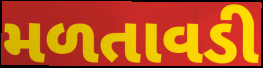
મળતાવડી